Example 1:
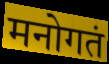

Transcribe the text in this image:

मनोगतं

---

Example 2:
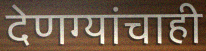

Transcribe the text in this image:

देणग्यांचाही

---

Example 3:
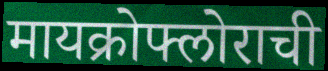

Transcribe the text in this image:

मायक्रोफ्लोराची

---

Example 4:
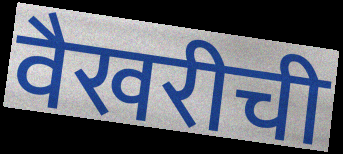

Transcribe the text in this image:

वैखरीची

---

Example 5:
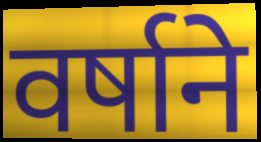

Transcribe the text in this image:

वर्षाने